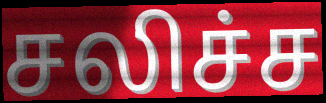
சலிச்ச